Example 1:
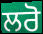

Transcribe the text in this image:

ਲਰੋ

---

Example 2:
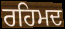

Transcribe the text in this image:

ਰਹਿਮਦ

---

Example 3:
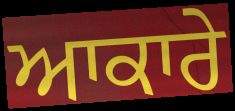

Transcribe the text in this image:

ਆਕਾਰੇ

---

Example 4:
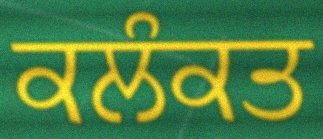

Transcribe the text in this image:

ਕਲੰਕਤ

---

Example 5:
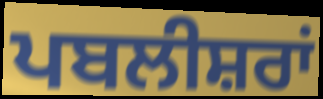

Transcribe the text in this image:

ਪਬਲੀਸ਼ਰਾਂ